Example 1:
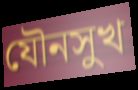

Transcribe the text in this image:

যৌনসুখ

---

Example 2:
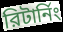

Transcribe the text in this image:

রিটার্নিং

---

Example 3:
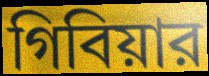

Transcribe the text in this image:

গিবিয়ার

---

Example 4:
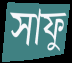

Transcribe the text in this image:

সাফু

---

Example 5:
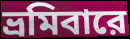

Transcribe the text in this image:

ভ্রমিবারে